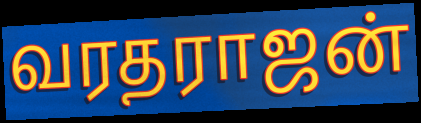
வரதராஜன்